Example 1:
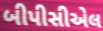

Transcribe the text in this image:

બીપીસીએલ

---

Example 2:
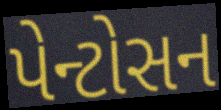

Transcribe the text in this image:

પેન્ટોસન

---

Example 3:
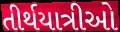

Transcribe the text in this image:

તીર્થયાત્રીઓ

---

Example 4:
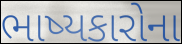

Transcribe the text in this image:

ભાષ્યકારોના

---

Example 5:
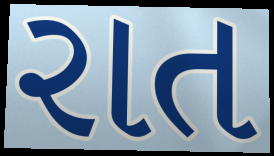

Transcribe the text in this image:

રાત